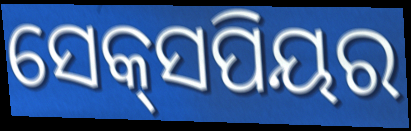
ସେକ୍‌ସପିୟର